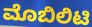
ಮೊಬಿಲಿಟಿ